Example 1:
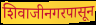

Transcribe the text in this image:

शिवाजीनगरपासून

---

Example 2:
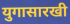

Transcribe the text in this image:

युगासारखी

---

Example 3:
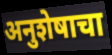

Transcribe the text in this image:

अनुशेषाचा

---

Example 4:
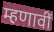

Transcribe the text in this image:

म्हणावीं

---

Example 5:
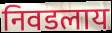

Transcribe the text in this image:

निवडलाय